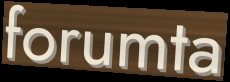
forumta